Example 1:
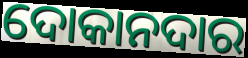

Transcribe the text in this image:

ଦୋକାନଦାର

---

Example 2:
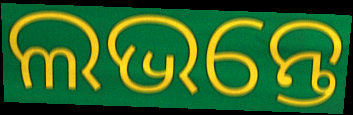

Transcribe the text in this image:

ଲଭନ୍ତେ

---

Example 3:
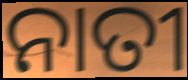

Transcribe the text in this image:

ନାତୀ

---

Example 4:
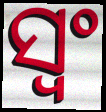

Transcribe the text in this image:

ସ୍ୱଂ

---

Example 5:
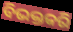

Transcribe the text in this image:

ବିଭକ୍ତକରି